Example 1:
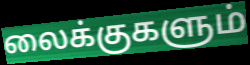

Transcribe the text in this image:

லைக்குகளும்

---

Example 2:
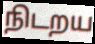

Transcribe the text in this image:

நிடறய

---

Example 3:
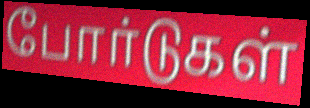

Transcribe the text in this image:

போர்டுகள்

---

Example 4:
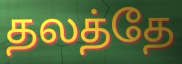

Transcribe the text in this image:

தலத்தே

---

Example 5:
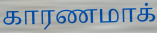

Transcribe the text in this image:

காரணமாக்